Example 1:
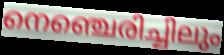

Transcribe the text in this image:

നെഞ്ചെരിച്ചിലും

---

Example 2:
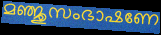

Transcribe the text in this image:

മഞ്ജുസംഭാഷണേ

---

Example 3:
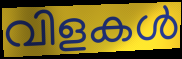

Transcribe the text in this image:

വിളകൾ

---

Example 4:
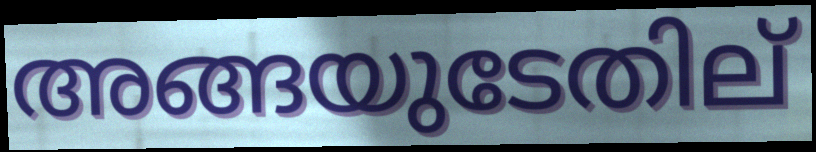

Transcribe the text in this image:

അങ്ങയുടേതില്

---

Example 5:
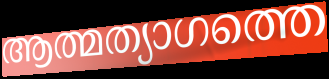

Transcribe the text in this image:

ആത്മത്യാഗത്തെ